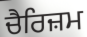
ਚੈਰਿਜ਼ਮ